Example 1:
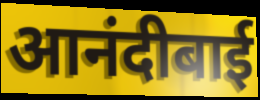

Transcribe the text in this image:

आनंदीबाई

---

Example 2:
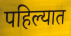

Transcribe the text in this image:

पहिल्यात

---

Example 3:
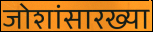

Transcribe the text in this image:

जोशांसारख्या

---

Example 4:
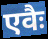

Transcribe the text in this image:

एवैः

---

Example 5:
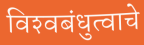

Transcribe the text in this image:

विश्वबंधुत्वाचे